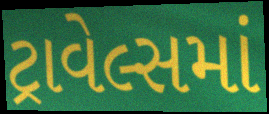
ટ્રાવેલ્સમાં